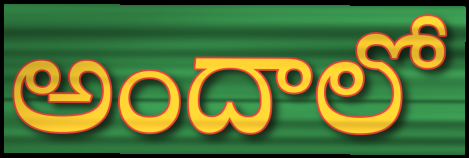
అందాలో